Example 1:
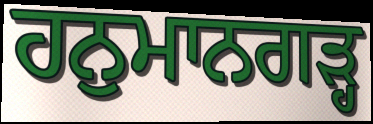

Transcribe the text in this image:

ਹਨੁਮਾਨਗੜ੍ਹ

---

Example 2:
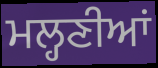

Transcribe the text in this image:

ਮਲ੍ਹਣੀਆਂ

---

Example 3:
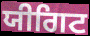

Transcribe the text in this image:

ਯੀਗਿਟ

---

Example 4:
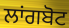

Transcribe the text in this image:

ਲਾਂਗਬੋਟ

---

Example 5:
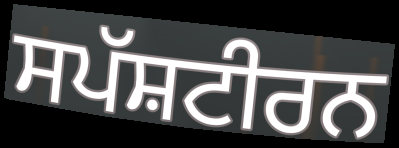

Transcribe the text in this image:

ਸਪੱਸ਼ਟੀਰਨ